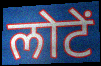
लोटें